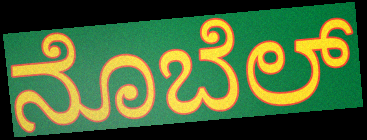
ನೊಬೆಲ್